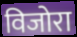
विजोरा